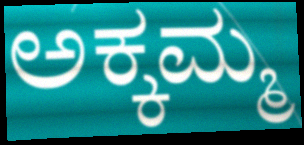
ಅಕ್ಕಮ್ಮ